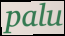
palu